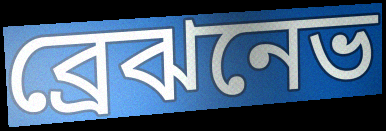
ব্রেঝনেভ